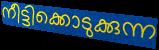
നീട്ടിക്കൊടുക്കുന്ന